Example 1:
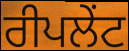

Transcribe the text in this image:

ਰੀਪਲੇਂਟ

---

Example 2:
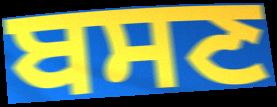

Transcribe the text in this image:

ਬਸਣ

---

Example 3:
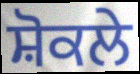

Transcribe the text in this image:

ਸ਼ੋਕਲੇ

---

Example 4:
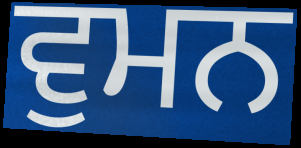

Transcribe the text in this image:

ਵੁਮਨ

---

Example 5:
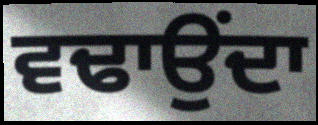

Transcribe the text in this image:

ਵਢਾਉਂਦਾ